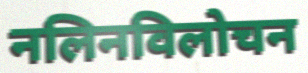
नलिनविलोचन